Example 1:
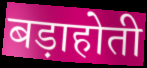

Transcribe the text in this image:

बड़ाहोती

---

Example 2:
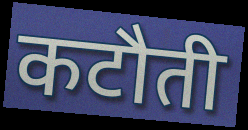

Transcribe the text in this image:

कटौती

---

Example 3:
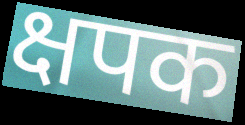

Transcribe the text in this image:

क्षपक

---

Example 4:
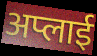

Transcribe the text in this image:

अप्‍लाई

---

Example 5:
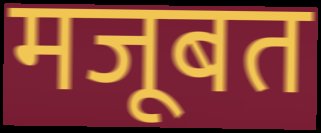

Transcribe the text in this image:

मजूबत